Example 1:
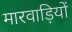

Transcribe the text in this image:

मारवाड़ियों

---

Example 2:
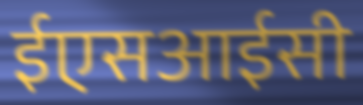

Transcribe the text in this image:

ईएसआईसी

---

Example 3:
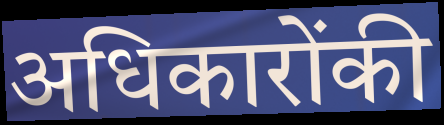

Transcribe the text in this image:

अधिकारोंकी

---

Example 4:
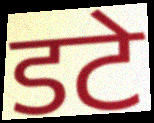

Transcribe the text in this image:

डटे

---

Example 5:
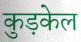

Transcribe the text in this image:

कुड़केल